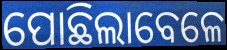
ପୋଛିଲାବେଳେ